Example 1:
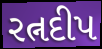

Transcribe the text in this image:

રત્નદીપ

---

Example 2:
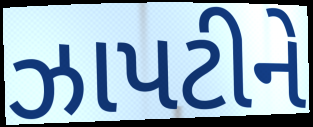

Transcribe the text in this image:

ઝાપટીને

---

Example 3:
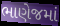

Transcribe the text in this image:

ભાણેજમાં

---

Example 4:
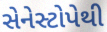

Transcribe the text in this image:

સેનેસ્ટોપેથી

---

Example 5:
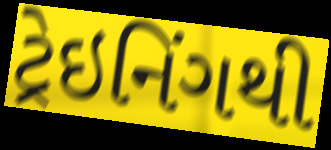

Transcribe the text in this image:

ટ્રેઇનિંગથી